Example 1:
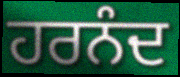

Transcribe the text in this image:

ਹਰਨੰਦ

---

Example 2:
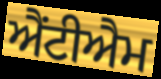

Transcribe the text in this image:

ਐਂਟੀਐਮ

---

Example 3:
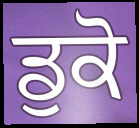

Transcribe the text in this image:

ਡੁਕੋ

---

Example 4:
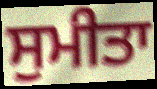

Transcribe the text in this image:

ਸੁਮੀਤਾ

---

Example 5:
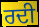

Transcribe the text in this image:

ਰਦੀ